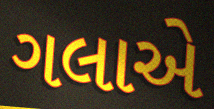
ગલાએ